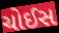
ચોઈસ